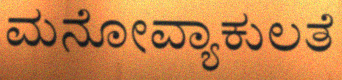
ಮನೋವ್ಯಾಕುಲತೆ